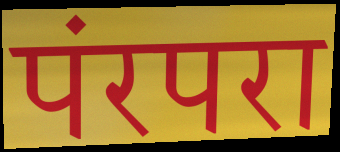
पंरपरा